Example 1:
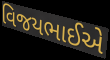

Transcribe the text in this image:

વિજયભાઈએ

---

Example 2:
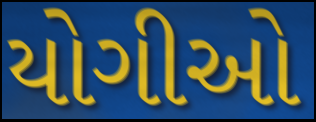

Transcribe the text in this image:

યોગીઓ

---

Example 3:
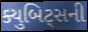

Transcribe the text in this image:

ક્યુબિટ્સની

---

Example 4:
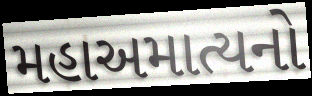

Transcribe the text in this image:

મહાઅમાત્યનો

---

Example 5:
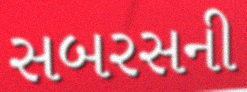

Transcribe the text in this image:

સબરસની